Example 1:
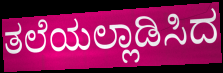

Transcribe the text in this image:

ತಲೆಯಲ್ಲಾಡಿಸಿದ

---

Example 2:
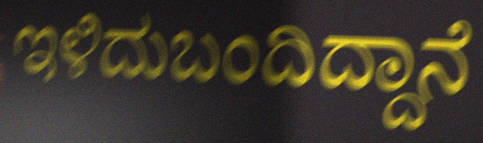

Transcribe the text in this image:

ಇಳಿದುಬಂದಿದ್ದಾನೆ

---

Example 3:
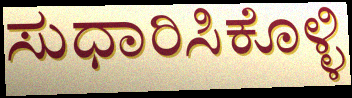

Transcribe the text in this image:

ಸುಧಾರಿಸಿಕೊಳ್ಳಿ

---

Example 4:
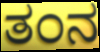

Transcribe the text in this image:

ತಂನ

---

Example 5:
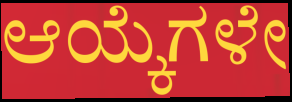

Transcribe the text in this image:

ಆಯ್ಕೆಗಳೇ